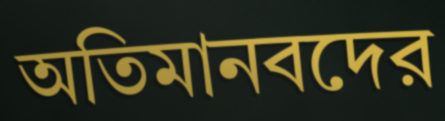
অতিমানবদের